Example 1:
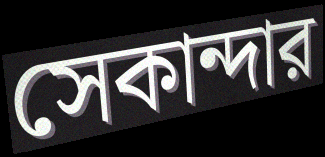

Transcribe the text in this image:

সেকান্দার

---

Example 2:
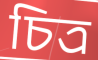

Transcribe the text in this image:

চিত্র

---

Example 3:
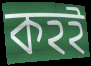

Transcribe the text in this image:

কহই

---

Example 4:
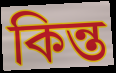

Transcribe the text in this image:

কিন্ত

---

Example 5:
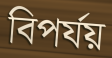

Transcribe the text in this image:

বিপর্যয়